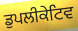
ਡੁਪਲੀਕੇਟਿਵ